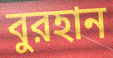
বুরহান